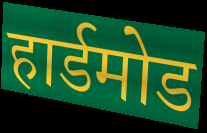
हार्डमोड